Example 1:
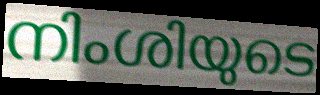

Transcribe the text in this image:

നിംശിയുടെ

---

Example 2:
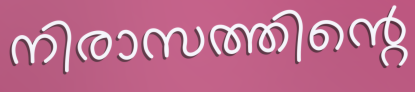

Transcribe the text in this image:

നിരാസത്തിന്റെ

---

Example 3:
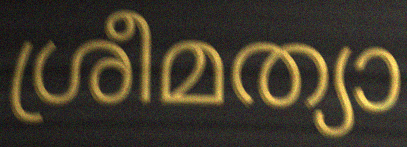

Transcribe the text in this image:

ശ്രീമത്യാ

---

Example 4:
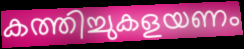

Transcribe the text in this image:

കത്തിച്ചുകളയണം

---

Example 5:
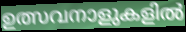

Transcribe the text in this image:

ഉത്സവനാളുകളിൽ